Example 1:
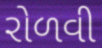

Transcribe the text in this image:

રોળવી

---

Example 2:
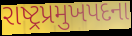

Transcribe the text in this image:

રાષ્ટ્રપ્રમુખપદના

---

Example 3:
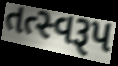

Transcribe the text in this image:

તત્સ્વરૂપ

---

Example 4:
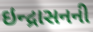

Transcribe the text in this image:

ઇન્દ્રાસનની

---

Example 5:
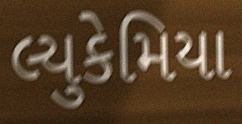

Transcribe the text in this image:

લ્યુકેમિયા